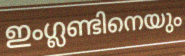
ഇംഗ്ലണ്ടിനെയും